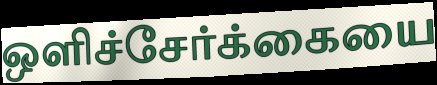
ஒளிச்சேர்க்கையை